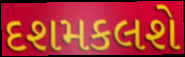
દશમકલશે